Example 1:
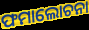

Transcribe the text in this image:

ଫମାଲୋଚନା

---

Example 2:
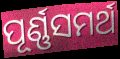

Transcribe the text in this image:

ପୂର୍ଣ୍ଣସମର୍ଥ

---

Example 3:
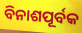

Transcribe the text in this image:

ବିନାଶପୂର୍ବକ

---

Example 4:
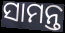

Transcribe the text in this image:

ସାମନ୍ତ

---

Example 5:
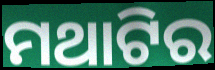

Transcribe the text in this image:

ମଥାଟିର